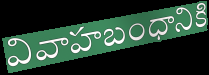
వివాహబంధానికి